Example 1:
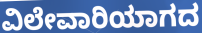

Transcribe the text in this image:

ವಿಲೇವಾರಿಯಾಗದ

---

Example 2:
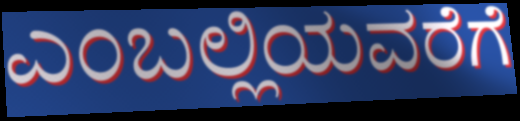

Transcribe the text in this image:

ಎಂಬಲ್ಲಿಯವರೆಗೆ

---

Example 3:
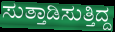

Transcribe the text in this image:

ಸುತ್ತಾಡಿಸುತ್ತಿದ್ದ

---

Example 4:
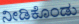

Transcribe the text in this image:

ನೀಡಿಕೊಂಡು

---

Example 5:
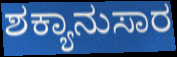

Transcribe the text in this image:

ಶಕ್ಯಾನುಸಾರ